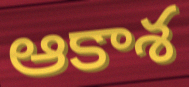
ఆకాశ